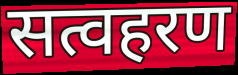
सत्वहरण